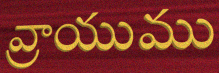
వ్రాయుము